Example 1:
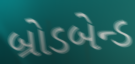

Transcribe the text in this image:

બ્રોડબેન્ડ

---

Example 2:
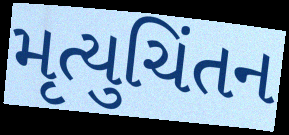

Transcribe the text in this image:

મૃત્યુચિંતન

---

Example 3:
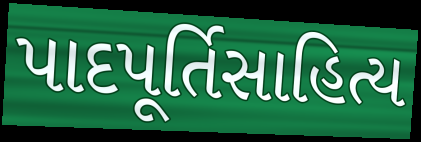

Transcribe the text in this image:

પાદપૂર્તિસાહિત્ય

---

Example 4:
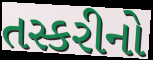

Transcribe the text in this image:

તસ્કરીનો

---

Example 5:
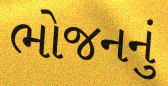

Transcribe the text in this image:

ભોજનનું